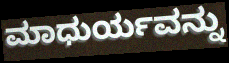
ಮಾಧುರ್ಯವನ್ನು